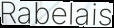
Rabelais